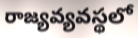
రాజ్యవ్యవస్థలో